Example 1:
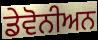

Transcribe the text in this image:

ਡੇਵੋਨੀਅਨ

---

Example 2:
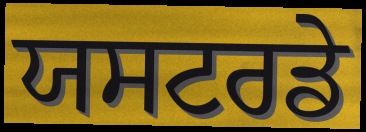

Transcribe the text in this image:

ਯਸਟਰਡੇ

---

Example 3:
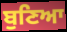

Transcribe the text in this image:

ਬੁਣਿਆ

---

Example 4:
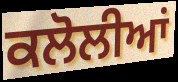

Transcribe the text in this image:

ਕਲੋਲੀਆਂ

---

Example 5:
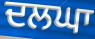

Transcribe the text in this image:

ਦਲਘਾ